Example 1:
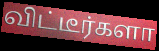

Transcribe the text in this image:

விட்டீர்களா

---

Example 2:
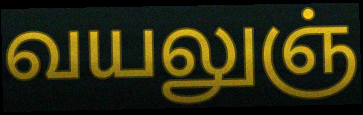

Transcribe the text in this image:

வயலுஞ்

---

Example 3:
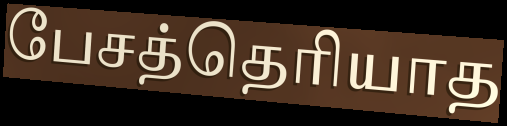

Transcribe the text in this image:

பேசத்தெரியாத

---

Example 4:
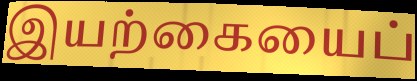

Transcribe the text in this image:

இயற்கையைப்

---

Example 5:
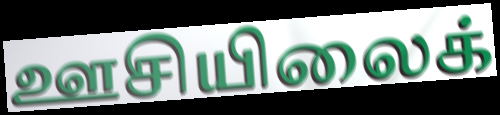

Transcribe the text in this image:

ஊசியிலைக்